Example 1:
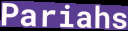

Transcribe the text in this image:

Pariahs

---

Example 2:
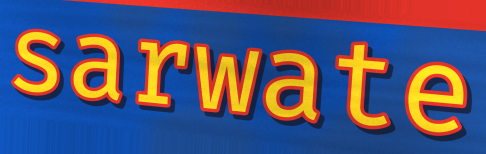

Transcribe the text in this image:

sarwate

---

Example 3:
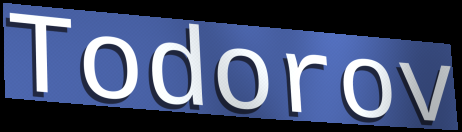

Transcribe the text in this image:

Todorov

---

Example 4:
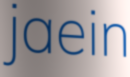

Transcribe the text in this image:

jaein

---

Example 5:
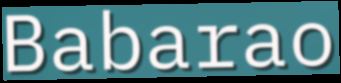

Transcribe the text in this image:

Babarao